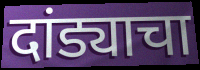
दांड्याचा